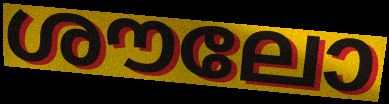
ശൗലോ